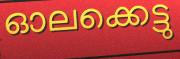
ഓലക്കെട്ടു